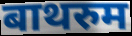
बाथरुम